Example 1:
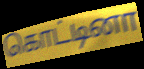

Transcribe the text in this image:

கொட்டினா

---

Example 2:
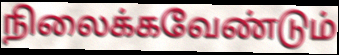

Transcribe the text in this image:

நிலைக்கவேண்டும்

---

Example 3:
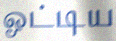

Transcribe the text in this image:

ஓட்டிய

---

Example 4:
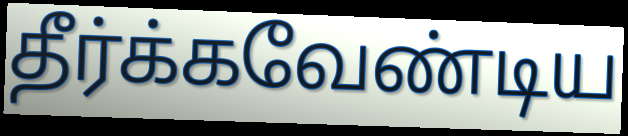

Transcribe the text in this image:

தீர்க்கவேண்டிய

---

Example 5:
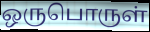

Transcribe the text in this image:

ஒருபொருள்